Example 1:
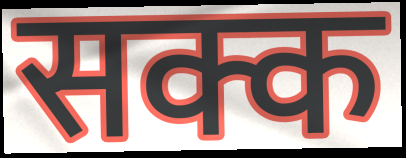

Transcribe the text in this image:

सक्क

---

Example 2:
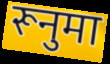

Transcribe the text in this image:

रूनुमा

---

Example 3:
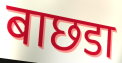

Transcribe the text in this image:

बाछडा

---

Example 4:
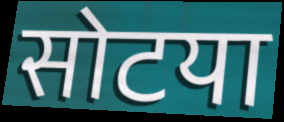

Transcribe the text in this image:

सोटया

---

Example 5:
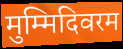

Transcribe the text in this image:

मुम्मिदिवरम